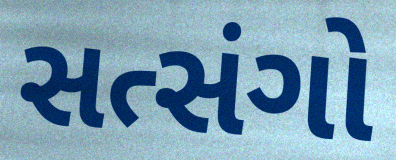
સત્સંગો